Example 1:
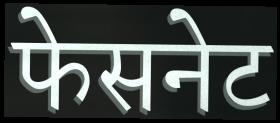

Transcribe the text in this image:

फेसनेट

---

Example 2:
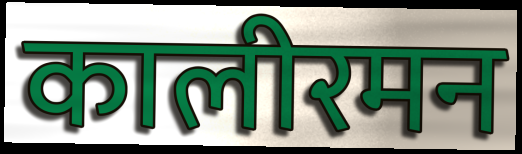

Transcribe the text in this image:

कालीरमन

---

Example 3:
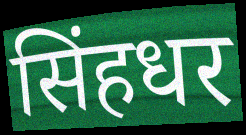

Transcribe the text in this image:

सिंहधर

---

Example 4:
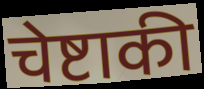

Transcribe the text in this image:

चेष्टाकी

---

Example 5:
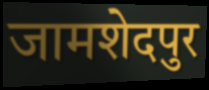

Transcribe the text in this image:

जामशेदपुर